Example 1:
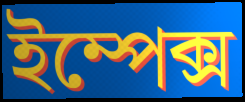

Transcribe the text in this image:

ইম্পেক্স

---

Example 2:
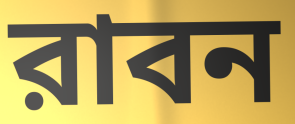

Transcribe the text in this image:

রাবন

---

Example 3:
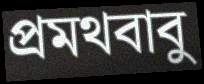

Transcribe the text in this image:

প্রমথবাবু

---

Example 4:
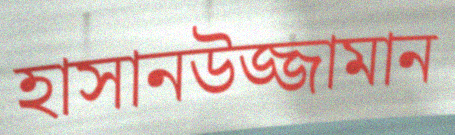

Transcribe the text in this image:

হাসানউজ্জামান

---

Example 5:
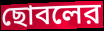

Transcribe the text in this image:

ছোবলের